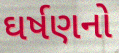
ઘર્ષણનો